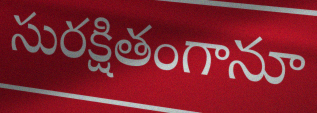
సురక్షితంగానూ